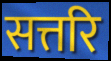
सत्तरि